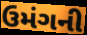
ઉમંગની